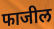
फाजील